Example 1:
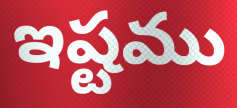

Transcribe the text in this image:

ఇష్టము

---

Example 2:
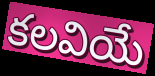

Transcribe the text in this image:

కలవియే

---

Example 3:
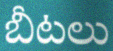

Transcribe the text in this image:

బీటలు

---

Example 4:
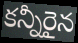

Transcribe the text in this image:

కన్నీరైన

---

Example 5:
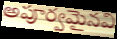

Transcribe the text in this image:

అపూర్వమైనవి